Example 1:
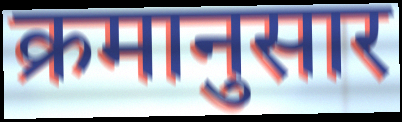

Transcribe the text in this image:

क्रमानुसार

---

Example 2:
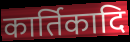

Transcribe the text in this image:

कार्तिकादि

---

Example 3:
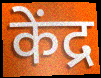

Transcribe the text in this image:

केंद्र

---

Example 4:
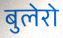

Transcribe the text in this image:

बुलेरो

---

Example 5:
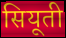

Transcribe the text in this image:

सियूती